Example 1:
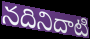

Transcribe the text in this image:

నదినిదాటి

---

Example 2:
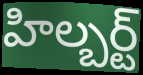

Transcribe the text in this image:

హిల్బర్ట్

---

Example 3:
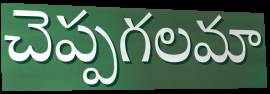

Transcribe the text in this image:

చెప్పగలమా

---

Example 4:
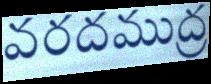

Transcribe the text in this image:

వరదముద్ర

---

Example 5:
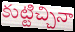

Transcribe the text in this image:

కుట్టిచ్చినా